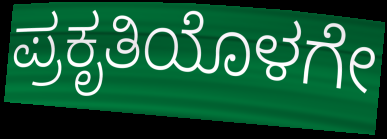
ಪ್ರಕೃತಿಯೊಳಗೇ